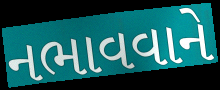
નભાવવાને